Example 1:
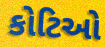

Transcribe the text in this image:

કોટિઓ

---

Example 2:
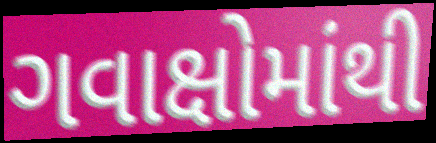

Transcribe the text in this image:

ગવાક્ષોમાંથી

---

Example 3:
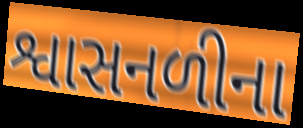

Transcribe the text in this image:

શ્વાસનળીના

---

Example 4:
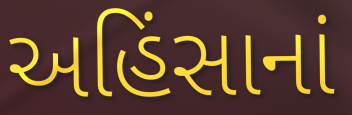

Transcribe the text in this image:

અહિંસાનાં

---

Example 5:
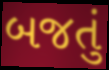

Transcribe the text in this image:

બજતું